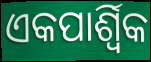
ଏକପାର୍ଶ୍ୱିକ